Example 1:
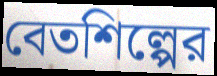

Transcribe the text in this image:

বেতশিল্পের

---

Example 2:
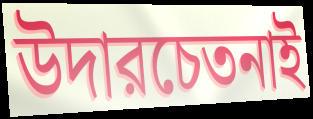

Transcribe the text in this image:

উদারচেতনাই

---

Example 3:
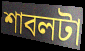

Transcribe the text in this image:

শাবলটা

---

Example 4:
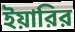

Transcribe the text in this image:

ইয়ারির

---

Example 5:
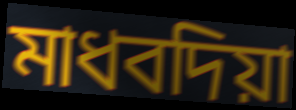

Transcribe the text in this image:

মাধবদিয়া